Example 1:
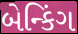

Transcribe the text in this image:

બેન્કિંગ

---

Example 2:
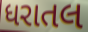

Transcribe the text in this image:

ધરાતલ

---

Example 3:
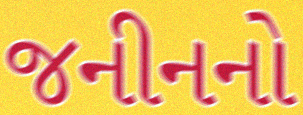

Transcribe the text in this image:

જનીનનો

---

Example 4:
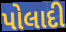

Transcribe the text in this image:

પોલાદી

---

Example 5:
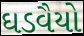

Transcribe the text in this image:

ઘડવૈયો